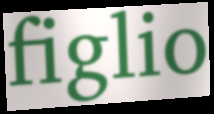
figlio